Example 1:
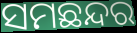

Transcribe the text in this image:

ସମଛନ୍ଦର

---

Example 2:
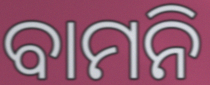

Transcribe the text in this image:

ବାମନି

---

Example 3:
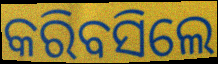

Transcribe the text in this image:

କରିବସିଲେ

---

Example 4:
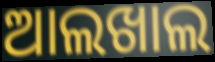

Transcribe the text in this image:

ଆଲଖାଲ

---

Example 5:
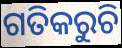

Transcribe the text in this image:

ଗତିକରୁଚି